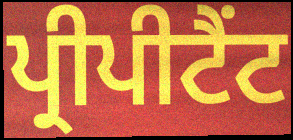
ਪ੍ਰੀਪੀਟੈਂਟ